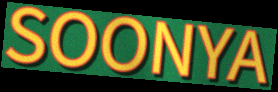
SOONYA